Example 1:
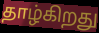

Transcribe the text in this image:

தாழ்கிறது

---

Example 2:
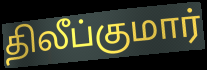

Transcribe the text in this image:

திலீப்குமார்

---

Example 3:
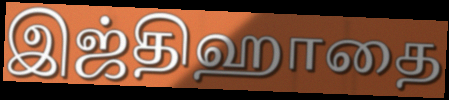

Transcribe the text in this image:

இஜ்திஹாதை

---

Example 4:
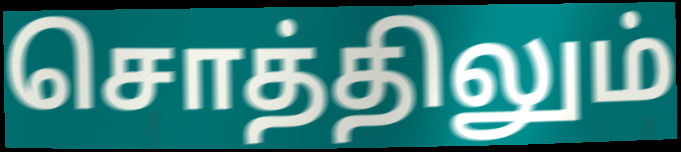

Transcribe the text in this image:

சொத்திலும்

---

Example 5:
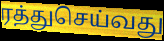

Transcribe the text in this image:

ரத்துசெய்வது